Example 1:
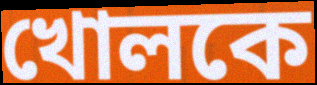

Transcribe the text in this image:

খোলকে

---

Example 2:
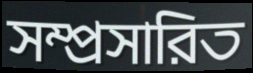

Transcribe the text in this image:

সম্প্রসারিত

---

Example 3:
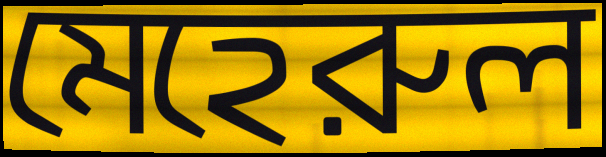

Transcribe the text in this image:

মেহেরুল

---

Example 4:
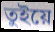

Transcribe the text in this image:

তুইয়ে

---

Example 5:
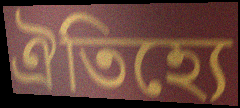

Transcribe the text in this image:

ঐতিহ্যে